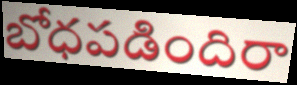
బోధపడిందిరా